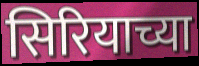
सिरियाच्या